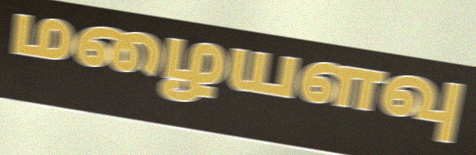
மழையளவு